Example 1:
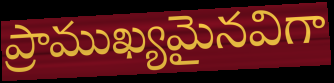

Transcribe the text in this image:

ప్రాముఖ్యమైనవిగా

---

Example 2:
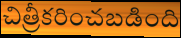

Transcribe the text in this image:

చిత్రీకరించబడింది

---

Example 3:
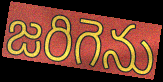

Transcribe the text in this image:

జరిగెను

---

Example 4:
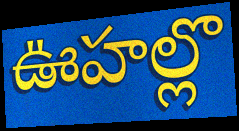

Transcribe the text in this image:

ఊహల్లొ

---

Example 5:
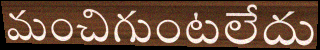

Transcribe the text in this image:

మంచిగుంటలేదు